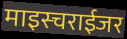
माइस्चराईजर